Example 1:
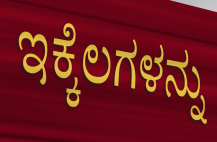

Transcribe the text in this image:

ಇಕ್ಕೆಲಗಳನ್ನು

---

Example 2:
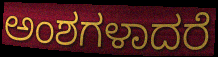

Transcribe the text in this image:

ಅಂಶಗಳಾದರೆ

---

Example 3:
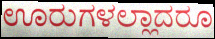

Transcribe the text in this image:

ಊರುಗಳಲ್ಲಾದರೂ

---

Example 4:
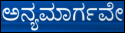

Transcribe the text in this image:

ಅನ್ಯಮಾರ್ಗವೇ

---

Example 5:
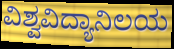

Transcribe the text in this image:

ವಿಶ್ವವಿದ್ಯಾನಿಲಯ